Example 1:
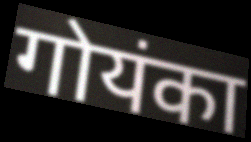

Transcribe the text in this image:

गोयंका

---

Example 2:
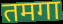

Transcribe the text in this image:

तमगा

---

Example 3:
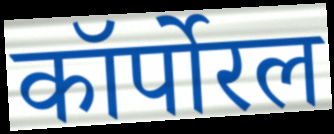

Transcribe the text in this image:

कॉर्पोरल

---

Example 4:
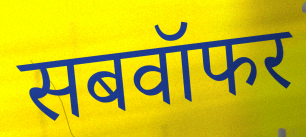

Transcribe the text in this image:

सबवॉफर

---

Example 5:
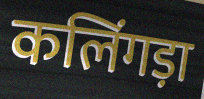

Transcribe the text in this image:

कलिंगड़ा